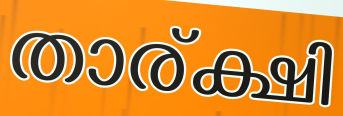
താര്ക്ഷി